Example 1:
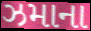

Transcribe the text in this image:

ઝમાના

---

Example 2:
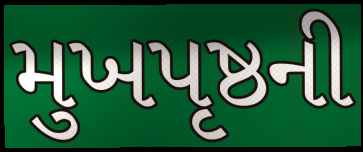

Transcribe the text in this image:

મુખપૃષ્ઠની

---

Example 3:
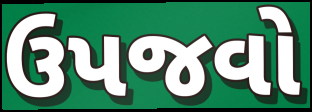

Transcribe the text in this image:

ઉપજવો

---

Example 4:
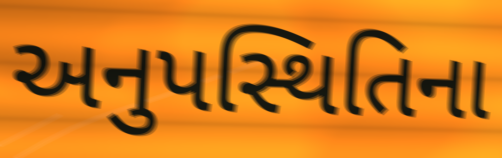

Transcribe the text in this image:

અનુપસ્થિતિના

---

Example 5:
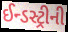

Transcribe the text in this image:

ઈન્ડસ્ટ્રીની